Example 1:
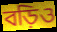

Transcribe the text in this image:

বড়িও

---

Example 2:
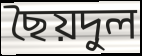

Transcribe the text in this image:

ছৈয়দুল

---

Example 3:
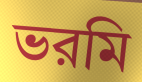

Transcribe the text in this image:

ভরমি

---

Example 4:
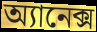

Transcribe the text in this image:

অ্যানেক্স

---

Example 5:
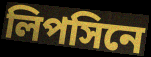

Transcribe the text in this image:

লিপসিনে